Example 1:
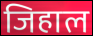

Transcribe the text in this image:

जिहाल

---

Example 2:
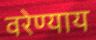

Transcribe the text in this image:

वरेण्याय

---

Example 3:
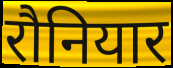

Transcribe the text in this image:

रौनियार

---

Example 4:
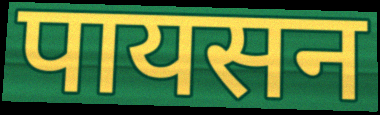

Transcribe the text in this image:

पायसन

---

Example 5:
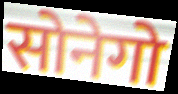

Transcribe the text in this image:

सोनेगो